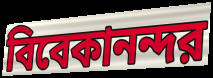
বিবেকানন্দর